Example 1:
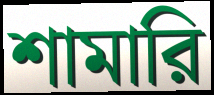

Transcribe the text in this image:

শামারি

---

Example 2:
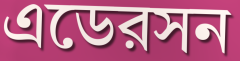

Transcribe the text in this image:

এডেরসন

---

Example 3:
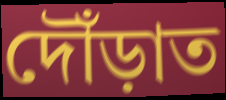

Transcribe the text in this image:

দৌঁড়াত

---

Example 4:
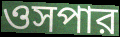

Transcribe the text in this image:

ওসপার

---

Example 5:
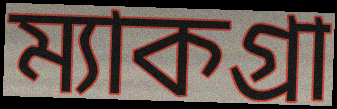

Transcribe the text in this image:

ম্যাকগ্রা